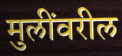
मुलींवरील